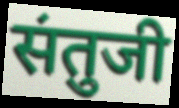
संतुजी